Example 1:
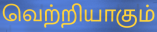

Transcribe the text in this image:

வெற்றியாகும்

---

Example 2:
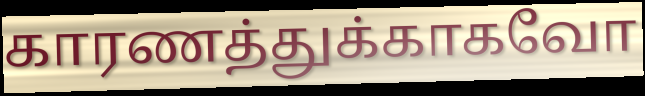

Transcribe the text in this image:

காரணத்துக்காகவோ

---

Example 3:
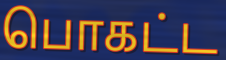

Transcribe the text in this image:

பொகட்ட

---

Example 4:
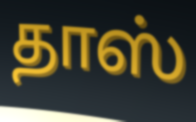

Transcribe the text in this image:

தாஸ்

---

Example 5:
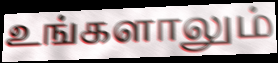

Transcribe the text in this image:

உங்களாலும்